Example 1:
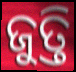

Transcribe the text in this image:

ଜୁତ୍ତି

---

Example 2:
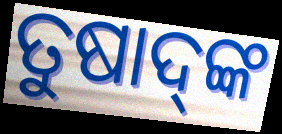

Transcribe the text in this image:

ତୁଷାଦ୍‌ଙ୍କ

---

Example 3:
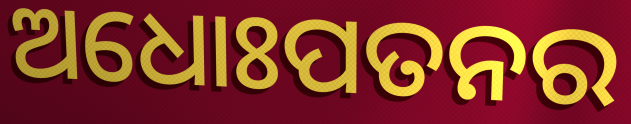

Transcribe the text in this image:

ଅଧୋଃପତନର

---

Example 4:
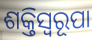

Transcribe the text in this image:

ଶକ୍ତିସ୍ବରୂପା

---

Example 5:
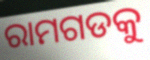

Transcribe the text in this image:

ରାମଗଡକୁ